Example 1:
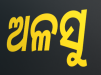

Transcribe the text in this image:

ଅଳସୁ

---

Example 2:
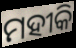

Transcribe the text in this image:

ମହୀକି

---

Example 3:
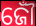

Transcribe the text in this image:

ଜୌଁ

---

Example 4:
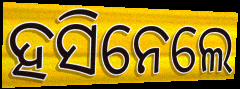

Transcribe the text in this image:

ହସିନେଲେ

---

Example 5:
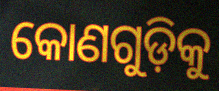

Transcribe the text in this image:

କୋଣଗୁଡ଼ିକୁ